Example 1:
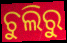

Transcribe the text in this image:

ଚୁଲିରୁ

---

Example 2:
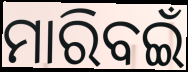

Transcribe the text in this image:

ମାରିବଇଁ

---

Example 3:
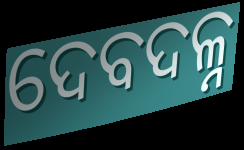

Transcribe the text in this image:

ଦେବଦଳ୍ନ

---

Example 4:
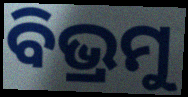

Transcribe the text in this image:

ବିଭ୍ରମୁ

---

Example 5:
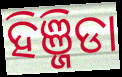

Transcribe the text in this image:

ହିଞ୍ଜିଡା